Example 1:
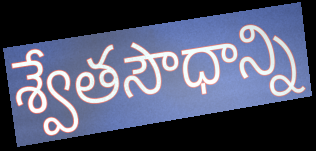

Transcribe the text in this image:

శ్వేతసౌధాన్ని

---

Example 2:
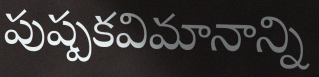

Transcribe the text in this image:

పుష్పకవిమానాన్ని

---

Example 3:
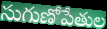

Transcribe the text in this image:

సుగుణోపేతుల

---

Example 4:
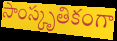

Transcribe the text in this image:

సాంస్కృతికంగా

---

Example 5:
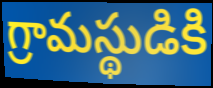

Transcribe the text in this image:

గ్రామస్థుడికి